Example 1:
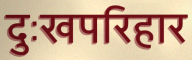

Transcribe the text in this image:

दुःखपरिहार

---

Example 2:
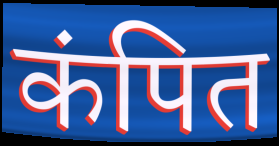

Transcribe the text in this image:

कंपित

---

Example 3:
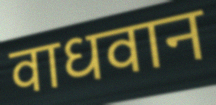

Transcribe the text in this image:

वाधवान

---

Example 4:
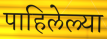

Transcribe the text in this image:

पाहिलेल्या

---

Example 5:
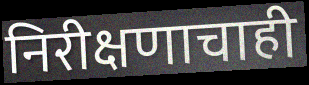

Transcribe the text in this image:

निरीक्षणाचाही